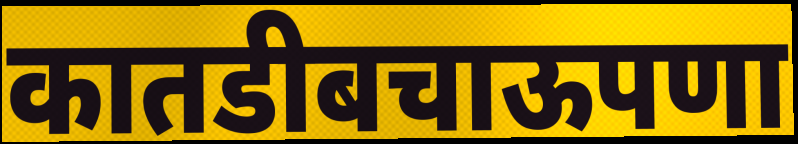
कातडीबचाऊपणा